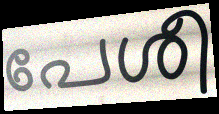
പേശീ